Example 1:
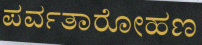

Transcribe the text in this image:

ಪರ್ವತಾರೋಹಣ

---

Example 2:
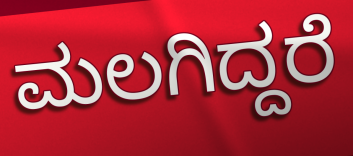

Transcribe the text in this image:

ಮಲಗಿದ್ದರೆ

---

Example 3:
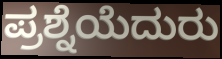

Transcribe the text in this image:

ಪ್ರಶ್ನೆಯೆದುರು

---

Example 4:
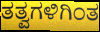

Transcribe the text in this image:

ತತ್ವಗಳಿಗಿಂತ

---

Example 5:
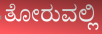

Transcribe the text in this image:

ತೋರುವಲ್ಲಿ